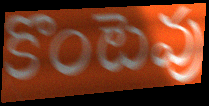
కొంటెవు